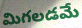
మిగలడమే